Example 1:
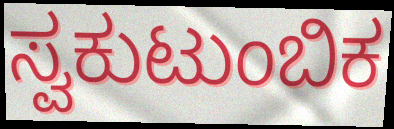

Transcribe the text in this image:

ಸ್ವಕುಟುಂಬಿಕ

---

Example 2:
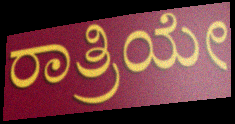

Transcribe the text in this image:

ರಾತ್ರಿಯೇ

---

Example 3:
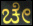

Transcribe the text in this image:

ಚೇ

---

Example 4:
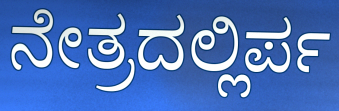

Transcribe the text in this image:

ನೇತ್ರದಲ್ಲಿರ್ಪ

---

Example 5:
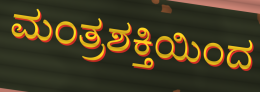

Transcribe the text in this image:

ಮಂತ್ರಶಕ್ತಿಯಿಂದ